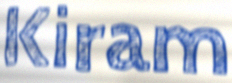
Kiram